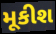
મૂકીશ